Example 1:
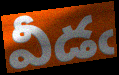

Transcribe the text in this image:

వీడఁ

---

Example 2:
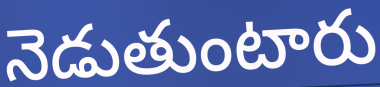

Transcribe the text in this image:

నెడుతుంటారు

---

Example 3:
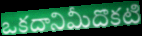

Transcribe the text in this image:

ఒకదానిమీదొకటి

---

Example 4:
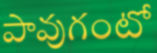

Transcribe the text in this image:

పావుగంటో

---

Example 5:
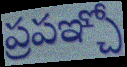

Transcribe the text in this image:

ప్రపఞ్చో